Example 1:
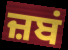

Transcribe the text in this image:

ਜ਼ਬਂ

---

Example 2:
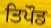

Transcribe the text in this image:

ਤਿਪੌਡ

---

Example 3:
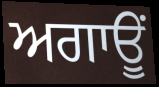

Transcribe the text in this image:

ਅਗਾਊੂਂ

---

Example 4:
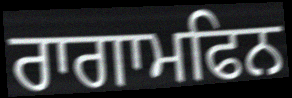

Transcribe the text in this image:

ਰਾਗਾਮਫਿਨ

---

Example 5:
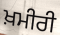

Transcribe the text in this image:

ਖ਼ਮੀਰੀ